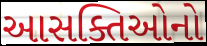
આસક્તિઓનો